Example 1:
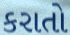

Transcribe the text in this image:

કરાતો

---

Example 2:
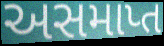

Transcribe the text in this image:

અસમાપ્ત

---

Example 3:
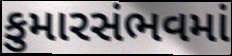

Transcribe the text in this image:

કુમારસંભવમાં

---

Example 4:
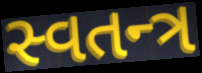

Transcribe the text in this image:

સ્વતન્ત્ર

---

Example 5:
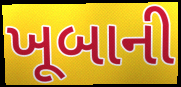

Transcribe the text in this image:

ખૂબાની